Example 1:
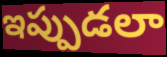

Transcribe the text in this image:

ఇప్పుడలా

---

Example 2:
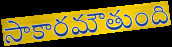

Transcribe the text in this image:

సాకారమౌతుంది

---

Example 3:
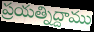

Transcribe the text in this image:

ప్రయత్నిద్దాము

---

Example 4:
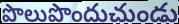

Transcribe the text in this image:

పొలుపొందుచుండు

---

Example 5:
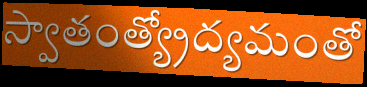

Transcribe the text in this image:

స్వాతంత్య్రోద్యమంతో